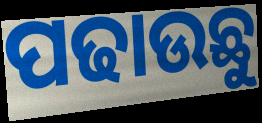
ପଢାଉଛୁ